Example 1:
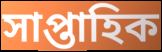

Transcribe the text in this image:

সাপ্তাহিক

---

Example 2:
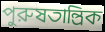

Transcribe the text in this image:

পুৰুষতান্ত্ৰিক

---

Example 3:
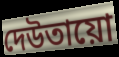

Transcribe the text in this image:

দেউতায়ো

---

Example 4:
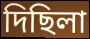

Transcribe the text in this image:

দিছিলা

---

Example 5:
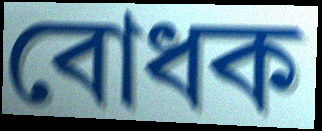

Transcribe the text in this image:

বোধক